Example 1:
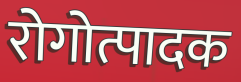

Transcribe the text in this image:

रोगोत्पादक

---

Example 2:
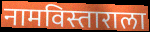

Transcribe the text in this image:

नामविस्ताराला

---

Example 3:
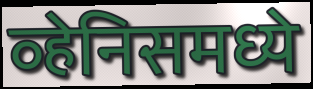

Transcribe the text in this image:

व्हेनिसमध्ये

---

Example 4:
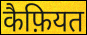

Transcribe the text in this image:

कैफ़ियत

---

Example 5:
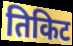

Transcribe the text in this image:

तिकिट